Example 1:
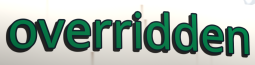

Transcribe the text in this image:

overridden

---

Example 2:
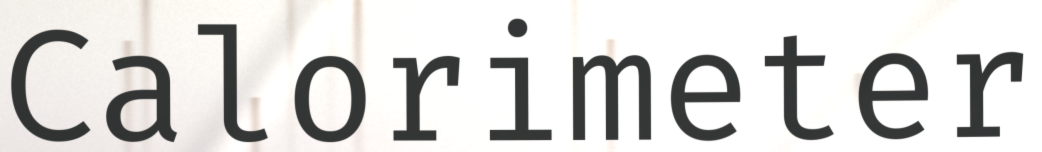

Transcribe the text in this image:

Calorimeter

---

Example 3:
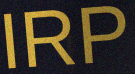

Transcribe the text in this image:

IRP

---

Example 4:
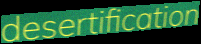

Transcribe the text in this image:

desertification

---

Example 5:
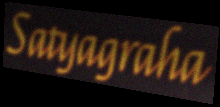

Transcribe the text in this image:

Satyagraha